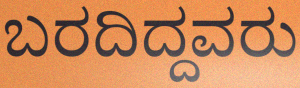
ಬರದಿದ್ದವರು